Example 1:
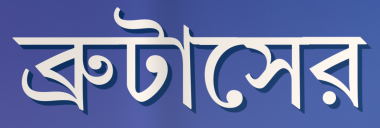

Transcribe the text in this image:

ব্রুটাসের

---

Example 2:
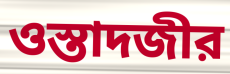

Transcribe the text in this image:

ওস্তাদজীর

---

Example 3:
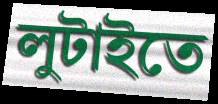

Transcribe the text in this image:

লুটাইতে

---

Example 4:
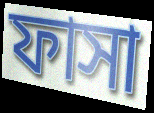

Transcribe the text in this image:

ফাসা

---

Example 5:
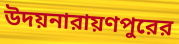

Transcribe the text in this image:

উদয়নারায়ণপুরের